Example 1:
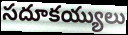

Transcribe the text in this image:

సదూకయ్యులు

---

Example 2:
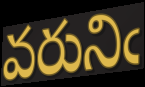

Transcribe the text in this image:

వరునిఁ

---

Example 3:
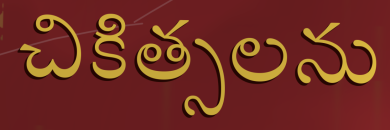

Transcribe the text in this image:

చికిత్సలను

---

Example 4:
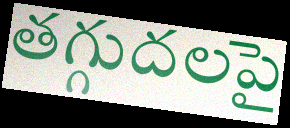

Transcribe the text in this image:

తగ్గుదలపై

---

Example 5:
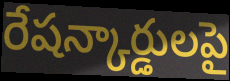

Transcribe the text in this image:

రేషన్కార్డులపై